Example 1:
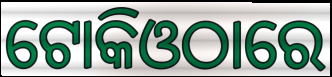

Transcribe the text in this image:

ଟୋକିଓଠାରେ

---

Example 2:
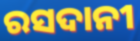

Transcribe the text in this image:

ରସଦାନୀ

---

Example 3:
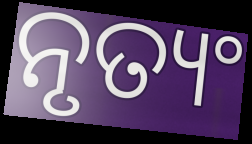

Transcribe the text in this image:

ନୃତ୍ୟଂ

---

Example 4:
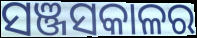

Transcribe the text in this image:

ସଞ୍ଜସକାଳର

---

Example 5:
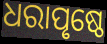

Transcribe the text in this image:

ଧରାପୃଷ୍ଠେ